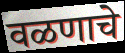
वळणाचे